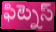
ఫిట్నెస్